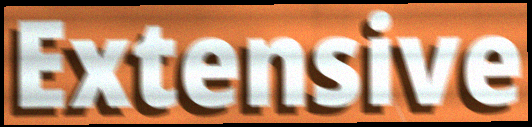
Extensive